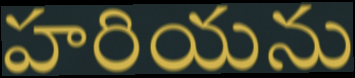
హరియను